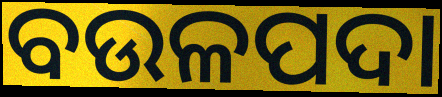
ବଉଳପଦା